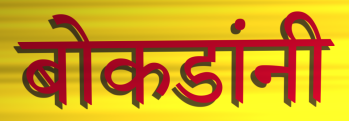
बोकडांनी